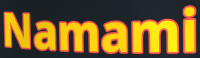
Namami